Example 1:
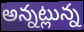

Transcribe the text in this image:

అన్నట్లున్న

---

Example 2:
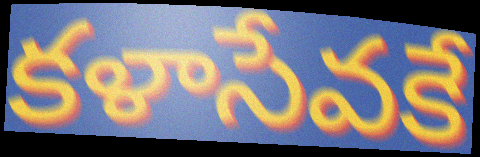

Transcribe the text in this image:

కళాసేవకే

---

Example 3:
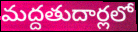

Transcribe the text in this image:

మద్దతుదార్లలో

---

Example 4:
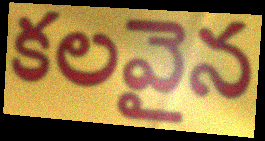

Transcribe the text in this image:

కలవైన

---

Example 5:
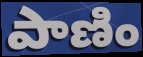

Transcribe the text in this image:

పాణిం